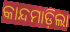
କାନ୍ଦମାଡ଼ିଲା